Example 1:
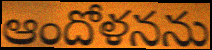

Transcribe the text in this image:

ఆందోళనను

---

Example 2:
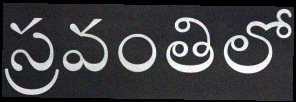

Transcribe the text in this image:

స్రవంతిలో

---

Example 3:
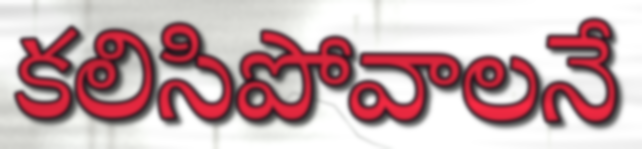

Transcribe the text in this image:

కలిసిపోవాలనే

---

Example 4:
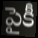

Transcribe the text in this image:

పైకీ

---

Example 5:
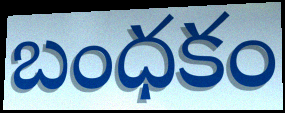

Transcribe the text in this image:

బంధకం